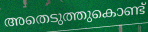
അതെടുത്തുകൊണ്ട്